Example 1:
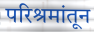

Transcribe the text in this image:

परिश्रमांतून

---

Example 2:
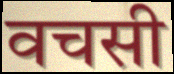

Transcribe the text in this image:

वचसी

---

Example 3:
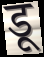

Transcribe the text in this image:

डू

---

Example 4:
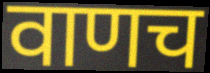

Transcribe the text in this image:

वाणच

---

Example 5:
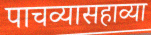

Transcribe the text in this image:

पाचव्यासहाव्या